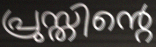
പ്രുസ്തിന്റെ